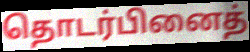
தொடர்பினைத்